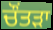
ਚੌਂਤੜਾ